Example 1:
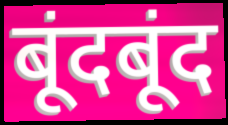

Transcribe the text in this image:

बूंदबूंद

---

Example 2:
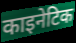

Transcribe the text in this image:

काइनेटिक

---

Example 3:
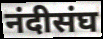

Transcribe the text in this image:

नंदीसंघ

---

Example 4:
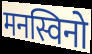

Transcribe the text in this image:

मनस्विनो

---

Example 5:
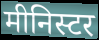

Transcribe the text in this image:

मीनिस्टर